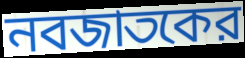
নবজাতকের